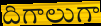
దిగాలుగా